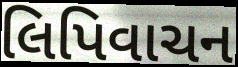
લિપિવાચન